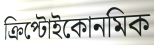
ক্রিপ্টোইকোনমিক